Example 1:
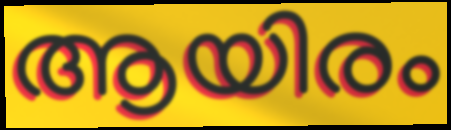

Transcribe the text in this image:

ആയിരം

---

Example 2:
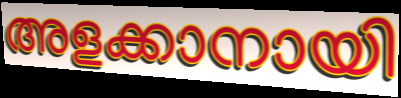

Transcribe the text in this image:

അളക്കാനായി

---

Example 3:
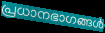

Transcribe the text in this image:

പ്രധാനഭാഗങ്ങൾ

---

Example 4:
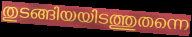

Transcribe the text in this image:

തുടങ്ങിയയിടത്തുതന്നെ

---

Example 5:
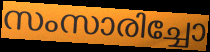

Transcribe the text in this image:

സംസാരിച്ചോ